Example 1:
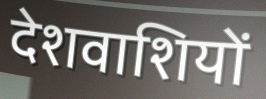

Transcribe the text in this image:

देशवाशियों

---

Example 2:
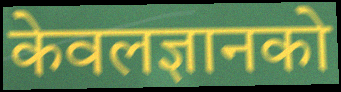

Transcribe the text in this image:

केवलज्ञानको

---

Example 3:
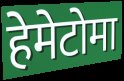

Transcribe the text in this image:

हेमेटोमा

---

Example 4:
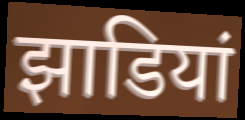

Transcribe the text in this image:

झाडियां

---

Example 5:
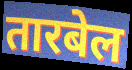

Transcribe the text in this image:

तारबेल